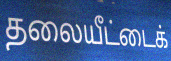
தலையீட்டைக்